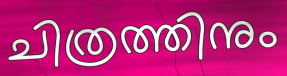
ചിത്രത്തിനും